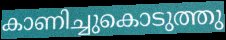
കാണിച്ചുകൊടുത്തു